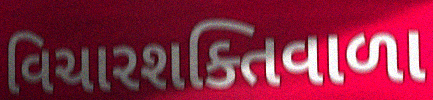
વિચારશક્તિવાળા